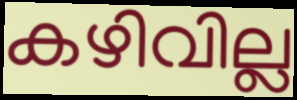
കഴിവില്ല